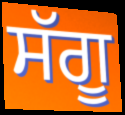
ਸੱਗੂ